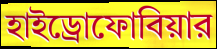
হাইড্রোফোবিয়ার